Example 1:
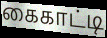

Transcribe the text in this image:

கைகாட்டி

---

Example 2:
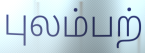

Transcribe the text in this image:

புலம்பற்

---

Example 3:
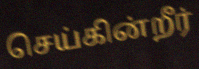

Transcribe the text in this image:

செய்கின்றீர்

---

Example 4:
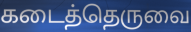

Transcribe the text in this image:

கடைத்தெருவை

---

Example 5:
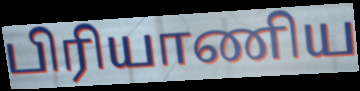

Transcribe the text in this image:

பிரியாணிய